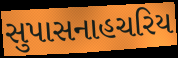
સુપાસનાહચરિય